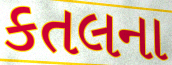
કતલના